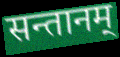
सन्तानम्